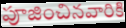
పూజించినవారికి